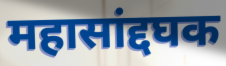
महासांद्दघक